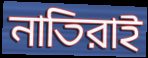
নাতিরাই